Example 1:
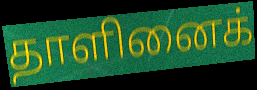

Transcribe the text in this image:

தாளினைக்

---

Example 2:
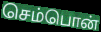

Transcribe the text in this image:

செம்பொன்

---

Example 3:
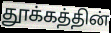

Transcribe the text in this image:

தூக்கத்தின்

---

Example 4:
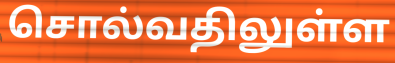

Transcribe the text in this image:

சொல்வதிலுள்ள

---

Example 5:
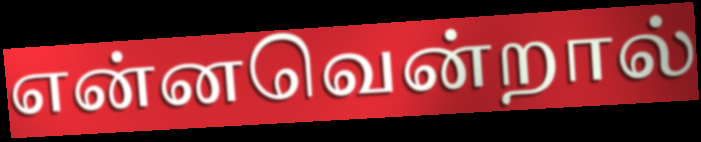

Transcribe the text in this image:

என்னவென்றால்